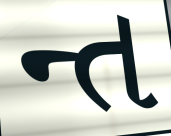
ન્ત